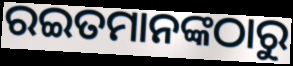
ରଇତମାନଙ୍କଠାରୁ